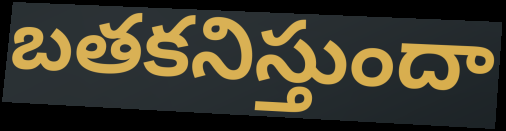
బతకనిస్తుందా